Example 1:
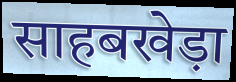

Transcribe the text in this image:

साहबखेड़ा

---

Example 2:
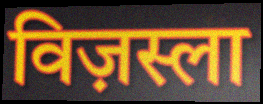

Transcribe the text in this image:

विज़स्ला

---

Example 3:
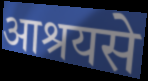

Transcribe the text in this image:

आश्रयसे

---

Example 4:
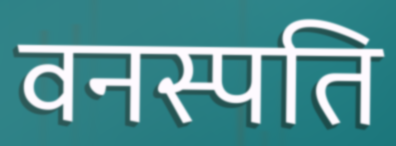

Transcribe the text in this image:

वनस्पति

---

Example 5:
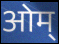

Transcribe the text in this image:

ओम्